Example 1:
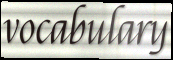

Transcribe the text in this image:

vocabulary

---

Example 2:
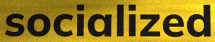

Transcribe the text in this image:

socialized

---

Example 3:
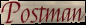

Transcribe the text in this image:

Postman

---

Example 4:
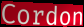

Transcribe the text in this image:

Cordon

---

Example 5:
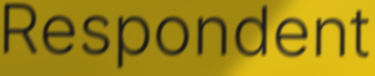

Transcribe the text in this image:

Respondent